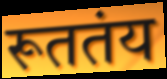
रूततंय